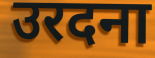
उरदना